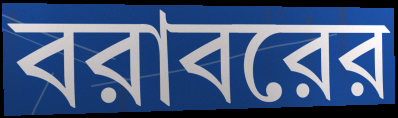
বরাবরের